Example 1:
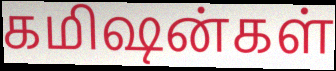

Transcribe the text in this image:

கமிஷன்கள்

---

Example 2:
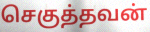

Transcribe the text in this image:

செகுத்தவன்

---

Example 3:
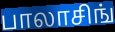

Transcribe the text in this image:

பாலாசிங்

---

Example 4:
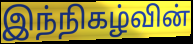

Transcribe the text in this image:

இந்நிகழ்வின்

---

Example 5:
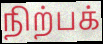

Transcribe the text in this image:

நிற்பக்